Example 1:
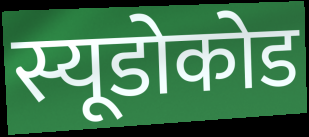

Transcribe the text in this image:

स्यूडोकोड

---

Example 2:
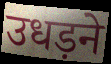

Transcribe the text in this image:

उधड़ने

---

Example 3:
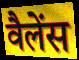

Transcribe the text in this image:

वैलेंस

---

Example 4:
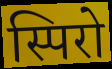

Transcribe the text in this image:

स्पिरो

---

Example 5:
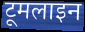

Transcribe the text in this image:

टूमलाइन